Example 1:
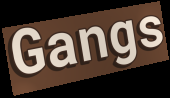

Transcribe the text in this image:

Gangs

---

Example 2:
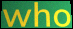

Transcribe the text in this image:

who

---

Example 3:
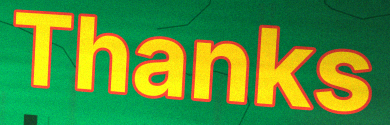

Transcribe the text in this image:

Thanks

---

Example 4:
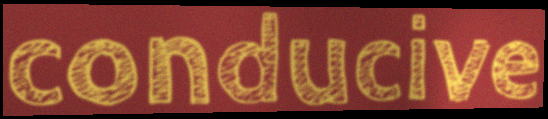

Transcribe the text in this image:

conducive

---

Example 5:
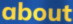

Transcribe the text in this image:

about